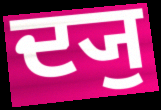
ਦ੍ਯੁ